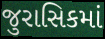
જુરાસિકમાં